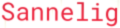
Sannelig